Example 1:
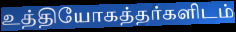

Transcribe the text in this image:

உத்தியோகத்தர்களிடம்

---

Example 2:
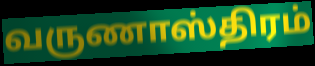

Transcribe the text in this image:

வருணாஸ்திரம்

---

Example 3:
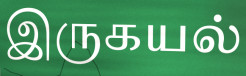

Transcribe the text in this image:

இருகயல்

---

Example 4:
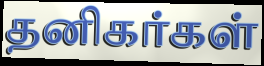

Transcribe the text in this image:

தனிகர்கள்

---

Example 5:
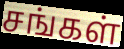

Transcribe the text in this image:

சங்கள்